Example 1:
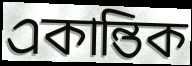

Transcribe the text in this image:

একান্তিক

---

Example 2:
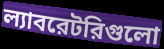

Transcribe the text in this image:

ল্যাবরেটরিগুলো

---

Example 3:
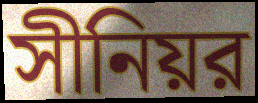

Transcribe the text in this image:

সীনিয়র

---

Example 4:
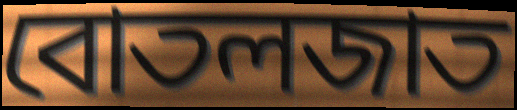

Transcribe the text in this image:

বোতলজাত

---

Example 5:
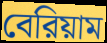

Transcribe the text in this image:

বেরিয়াম